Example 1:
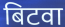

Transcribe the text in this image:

बिटवा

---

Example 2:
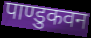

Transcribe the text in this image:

पाण्डुकवन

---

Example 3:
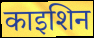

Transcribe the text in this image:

काइशिन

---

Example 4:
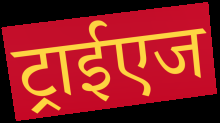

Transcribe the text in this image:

ट्राईएज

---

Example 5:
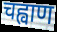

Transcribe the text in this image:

चह्वाण